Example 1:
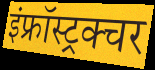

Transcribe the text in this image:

इंफ्रॉस्ट्रक्चर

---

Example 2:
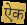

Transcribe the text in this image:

ऐक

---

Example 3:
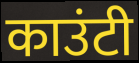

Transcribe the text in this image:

काउंटी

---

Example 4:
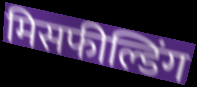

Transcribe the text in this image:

मिसफील्डिंग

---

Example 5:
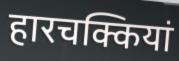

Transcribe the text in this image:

हारचक्कियां